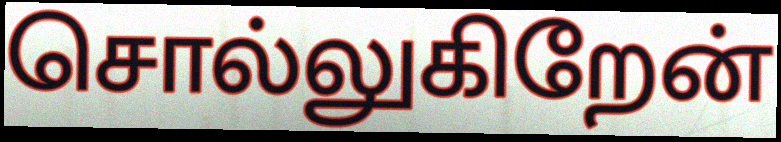
சொல்லுகிறேன்